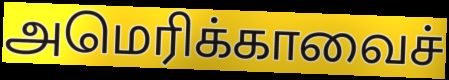
அமெரிக்காவைச்